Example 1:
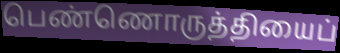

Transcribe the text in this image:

பெண்ணொருத்தியைப்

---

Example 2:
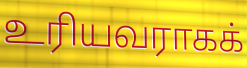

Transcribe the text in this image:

உரியவராகக்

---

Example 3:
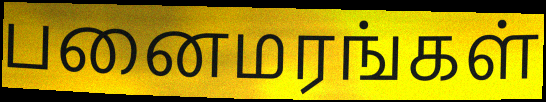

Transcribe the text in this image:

பனைமரங்கள்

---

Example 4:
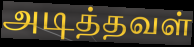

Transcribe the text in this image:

அடித்தவள்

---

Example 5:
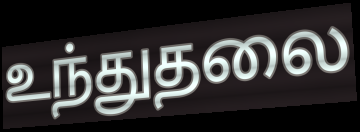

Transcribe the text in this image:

உந்துதலை